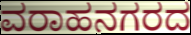
ವರಾಹನಗರದ